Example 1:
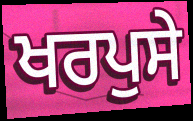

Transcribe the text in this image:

ਖਰਪੁਸੇ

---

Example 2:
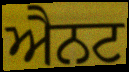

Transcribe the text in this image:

ਐਨਟ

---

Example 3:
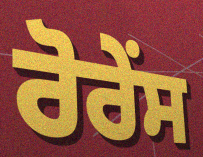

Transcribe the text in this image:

ਰੋਰੇਂਸ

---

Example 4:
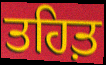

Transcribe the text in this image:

ਤਹਿਤ਼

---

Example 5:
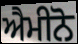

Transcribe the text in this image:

ਐਮੀਨੋ